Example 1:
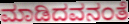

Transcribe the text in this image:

ಮಾಡಿದವನಂತೆ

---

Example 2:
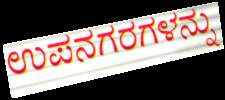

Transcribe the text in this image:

ಉಪನಗರಗಳನ್ನು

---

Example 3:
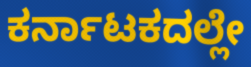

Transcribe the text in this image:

ಕರ್ನಾಟಕದಲ್ಲೇ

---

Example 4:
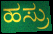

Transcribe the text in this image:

ಹಸ್ರು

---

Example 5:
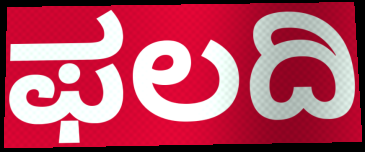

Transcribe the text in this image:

ಫಲದಿ